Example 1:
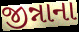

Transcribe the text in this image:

જીન્નાના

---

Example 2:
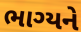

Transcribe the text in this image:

ભાગ્યને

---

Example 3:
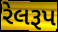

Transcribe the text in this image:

રેલરૂપ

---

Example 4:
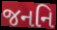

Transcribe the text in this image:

જનનિ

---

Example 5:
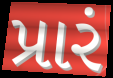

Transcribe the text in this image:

પ્રારં